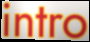
intro